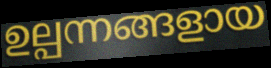
ഉല്പന്നങ്ങളായ